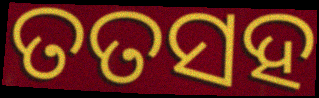
ତତସହ